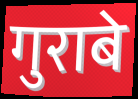
गुराबे